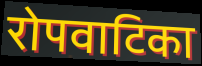
रोपवाटिका